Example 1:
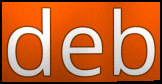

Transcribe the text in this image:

deb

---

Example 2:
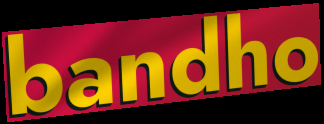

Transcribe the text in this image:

bandho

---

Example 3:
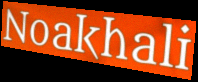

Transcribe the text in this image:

Noakhali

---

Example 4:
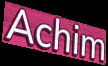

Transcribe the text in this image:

Achim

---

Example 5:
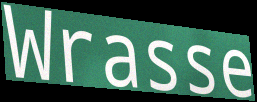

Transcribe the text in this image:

Wrasse